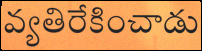
వ్యతిరేకించాడు